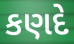
કણદે